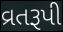
વ્રતરૂપી